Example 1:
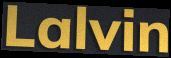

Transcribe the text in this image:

Lalvin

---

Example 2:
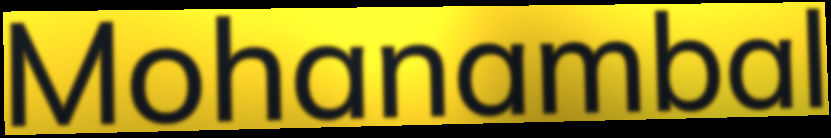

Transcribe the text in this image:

Mohanambal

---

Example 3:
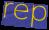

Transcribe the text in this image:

rep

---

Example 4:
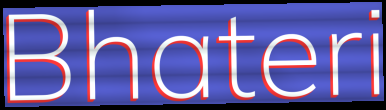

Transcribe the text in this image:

Bhateri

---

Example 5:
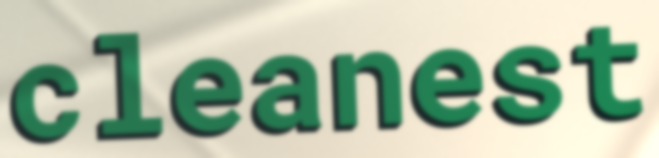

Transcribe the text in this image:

cleanest